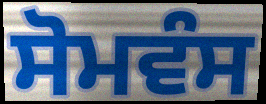
ਸੋਮਵੰਸ